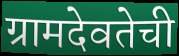
ग्रामदेवतेची